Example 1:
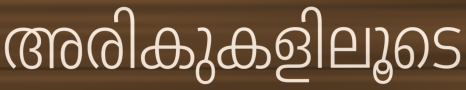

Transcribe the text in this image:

അരികുകളിലൂടെ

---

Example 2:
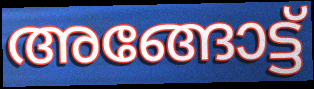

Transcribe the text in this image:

അങ്ങോട്ട്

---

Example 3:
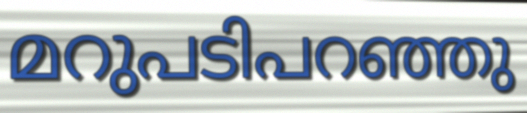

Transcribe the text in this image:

മറുപടിപറഞ്ഞു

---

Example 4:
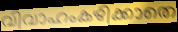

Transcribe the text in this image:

വിവാഹംകഴിക്കാതെ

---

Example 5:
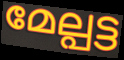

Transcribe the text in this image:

മേല്പട്ട